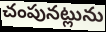
చంపునట్లును